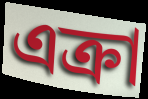
এক্রা